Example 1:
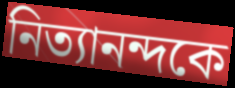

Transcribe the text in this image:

নিত্যানন্দকে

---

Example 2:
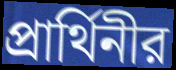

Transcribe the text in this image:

প্রার্থিনীর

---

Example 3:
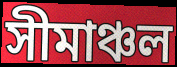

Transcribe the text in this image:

সীমাঞ্চল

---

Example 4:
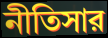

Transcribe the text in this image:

নীতিসার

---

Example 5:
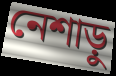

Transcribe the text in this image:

নেশাড়ু